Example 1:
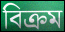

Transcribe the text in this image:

বিক্ৰম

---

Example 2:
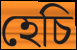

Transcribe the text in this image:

হেচি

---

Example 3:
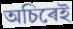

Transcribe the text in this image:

অচিৰেই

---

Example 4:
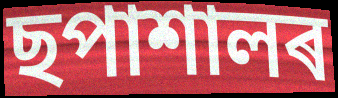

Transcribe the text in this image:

ছপাশালৰ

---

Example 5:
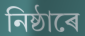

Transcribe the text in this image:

নিষ্ঠাৰে